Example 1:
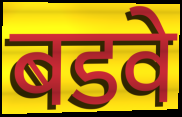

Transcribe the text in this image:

बडवे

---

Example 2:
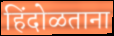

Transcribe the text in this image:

हिंदोळताना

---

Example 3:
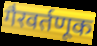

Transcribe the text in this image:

गैरवर्तणूक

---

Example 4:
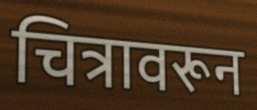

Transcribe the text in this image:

चित्रावरून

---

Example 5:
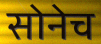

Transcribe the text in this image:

सोनेच